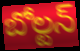
బోల్టన్